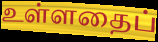
உள்ளதைப்